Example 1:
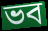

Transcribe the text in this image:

ভব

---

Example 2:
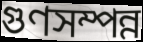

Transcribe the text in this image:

গুণসম্পন্ন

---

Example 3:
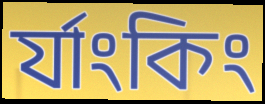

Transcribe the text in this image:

র্যাংকিং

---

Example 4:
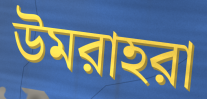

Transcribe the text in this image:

উমরাহরা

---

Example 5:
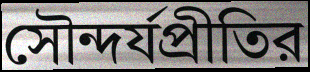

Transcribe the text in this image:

সৌন্দর্যপ্রীতির